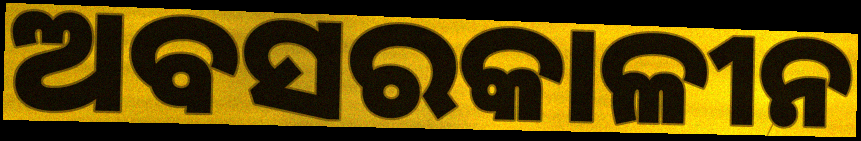
ଅବସରକାଳୀନ